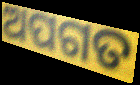
ଅପଗତ